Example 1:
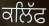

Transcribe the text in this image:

ਕਲਿੱਫ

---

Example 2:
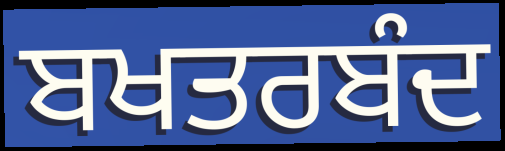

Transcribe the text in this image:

ਬਖਤਰਬੰਦ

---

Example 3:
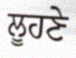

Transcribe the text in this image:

ਲੂਹਣੇ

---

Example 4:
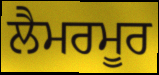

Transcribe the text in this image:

ਲੈਮਰਮੂਰ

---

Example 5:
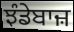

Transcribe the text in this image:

ਝੰਡੇਬਾਜ਼